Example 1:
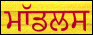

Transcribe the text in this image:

ਮਾੱਡਲਸ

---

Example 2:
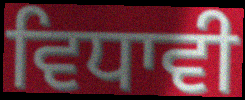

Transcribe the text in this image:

ਵਿਧਾਵੀ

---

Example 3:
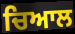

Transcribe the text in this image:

ਚਿਆਲ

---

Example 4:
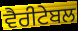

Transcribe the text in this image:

ਵੈਰੀਟੇਬਲ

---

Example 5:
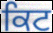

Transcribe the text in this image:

ਕਿਟ